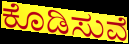
ಕೊಡಿಸುವೆ